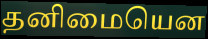
தனிமையென